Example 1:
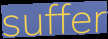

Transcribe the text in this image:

suffer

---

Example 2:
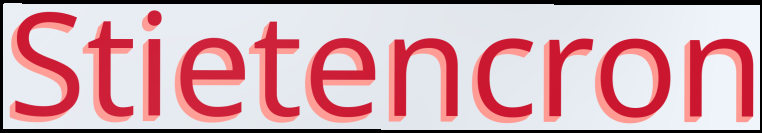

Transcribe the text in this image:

Stietencron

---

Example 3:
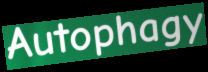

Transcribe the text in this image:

Autophagy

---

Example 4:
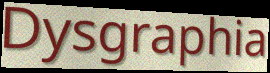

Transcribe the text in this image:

Dysgraphia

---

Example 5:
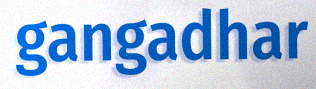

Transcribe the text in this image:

gangadhar